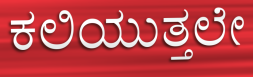
ಕಲಿಯುತ್ತಲೇ